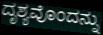
ದೃಶ್ಯವೊಂದನ್ನು